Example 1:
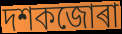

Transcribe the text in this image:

দশকজোৰা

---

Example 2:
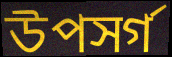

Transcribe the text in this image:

উপসৰ্গ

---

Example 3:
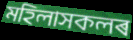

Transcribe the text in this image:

মহিলাসকলৰ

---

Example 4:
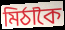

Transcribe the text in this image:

মিঠাকৈ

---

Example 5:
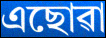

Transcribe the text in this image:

এছোৱা